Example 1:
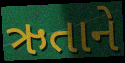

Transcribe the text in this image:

ઋતાને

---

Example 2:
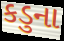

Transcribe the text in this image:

કડુના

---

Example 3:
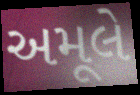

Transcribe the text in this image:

અમૂલે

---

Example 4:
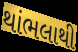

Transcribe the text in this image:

થાંભલાથી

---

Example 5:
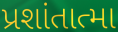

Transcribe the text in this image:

પ્રશાંતાત્મા